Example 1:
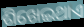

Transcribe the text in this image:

ଶିଖେଇଥାଏ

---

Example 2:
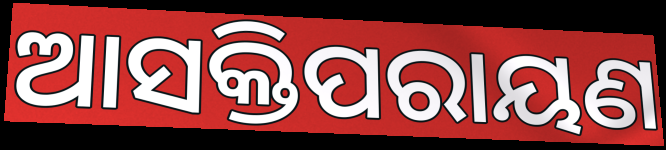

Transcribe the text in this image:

ଆସକ୍ତିପରାୟଣ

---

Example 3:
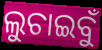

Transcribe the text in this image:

ଲୁଚାଇବୁଁ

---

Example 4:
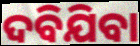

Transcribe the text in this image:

ଦବିଯିବା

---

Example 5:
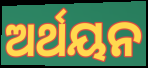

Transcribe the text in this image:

ଅର୍ଥୟନ